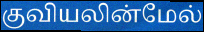
குவியலின்மேல்